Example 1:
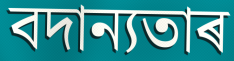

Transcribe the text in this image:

বদান্যতাৰ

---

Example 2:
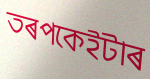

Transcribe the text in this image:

তৰপকেইটাৰ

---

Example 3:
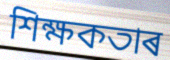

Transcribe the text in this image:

শিক্ষকতাৰ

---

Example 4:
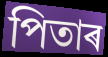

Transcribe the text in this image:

পিতাৰ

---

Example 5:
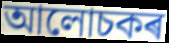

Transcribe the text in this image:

আলোচকৰ